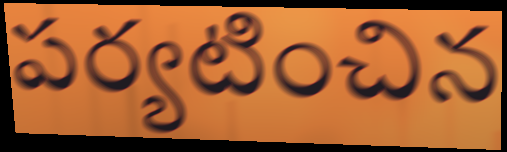
పర్యటించిన